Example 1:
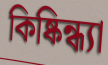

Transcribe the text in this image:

কিষ্কিন্ধ্যা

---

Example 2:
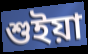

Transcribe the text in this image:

শুইয়া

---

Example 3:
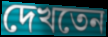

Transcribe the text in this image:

দেখতেন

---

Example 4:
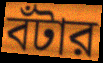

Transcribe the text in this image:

বঁটার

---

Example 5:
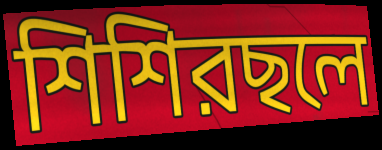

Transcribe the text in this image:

শিশিরছলে